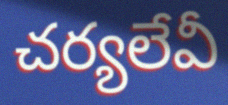
చర్యలేవీ